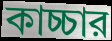
কাচ্চার